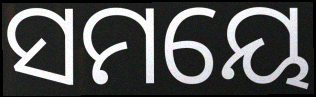
ସମୟେ